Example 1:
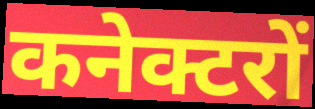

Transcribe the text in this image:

कनेक्टरों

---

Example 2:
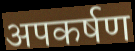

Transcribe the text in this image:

अपकर्षण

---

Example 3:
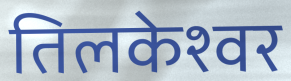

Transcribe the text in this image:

तिलकेश्वर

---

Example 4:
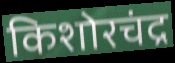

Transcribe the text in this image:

किशोरचंद्र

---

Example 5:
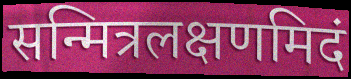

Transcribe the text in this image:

सन्मित्रलक्षणमिदं